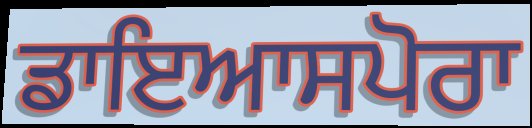
ਡਾਇਆਸਪੋਰਾ